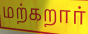
மற்கறார்